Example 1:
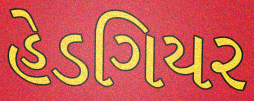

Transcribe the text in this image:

હેડગિયર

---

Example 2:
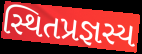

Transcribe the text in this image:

સ્થિતપ્રજ્ઞસ્ય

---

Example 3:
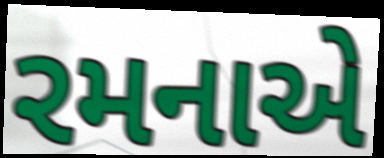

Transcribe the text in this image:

રમનાએ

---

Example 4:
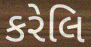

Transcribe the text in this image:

કરેલિ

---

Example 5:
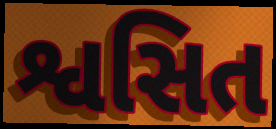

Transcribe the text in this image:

શ્વસિત